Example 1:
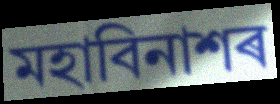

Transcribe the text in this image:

মহাবিনাশৰ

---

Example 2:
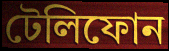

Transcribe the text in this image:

টেলিফোন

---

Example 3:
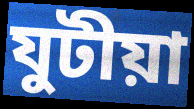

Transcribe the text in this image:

যুটীয়া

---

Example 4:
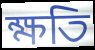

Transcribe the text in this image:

ক্ষতি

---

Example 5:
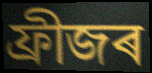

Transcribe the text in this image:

ফ্ৰীজৰ